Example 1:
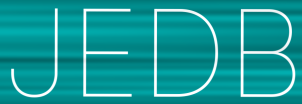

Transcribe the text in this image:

JEDB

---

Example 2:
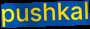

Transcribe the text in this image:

pushkal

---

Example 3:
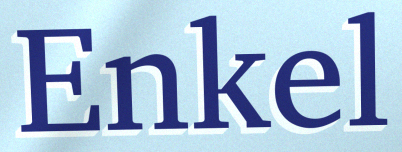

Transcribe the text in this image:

Enkel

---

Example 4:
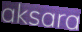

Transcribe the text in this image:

aksara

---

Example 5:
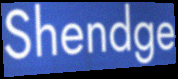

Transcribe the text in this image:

Shendge